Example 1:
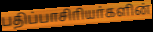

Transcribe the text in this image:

பதிப்பாசிரியர்களின்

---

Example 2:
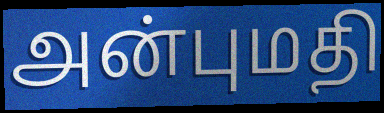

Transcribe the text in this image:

அன்புமதி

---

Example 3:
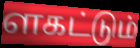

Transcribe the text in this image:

ளகட்டும்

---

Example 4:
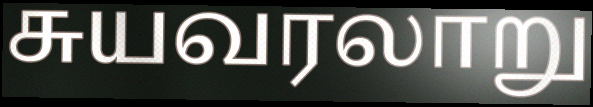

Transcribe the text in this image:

சுயவரலாறு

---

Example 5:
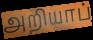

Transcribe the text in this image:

அறியாப்